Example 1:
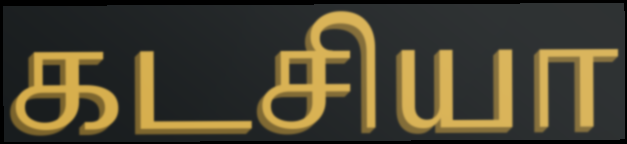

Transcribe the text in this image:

கடசியா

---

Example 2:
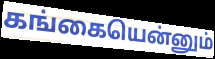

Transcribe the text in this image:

கங்கையென்னும்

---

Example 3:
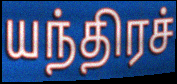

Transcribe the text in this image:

யந்திரச்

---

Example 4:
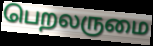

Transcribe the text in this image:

பெறலருமை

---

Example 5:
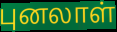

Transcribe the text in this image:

புனலாள்